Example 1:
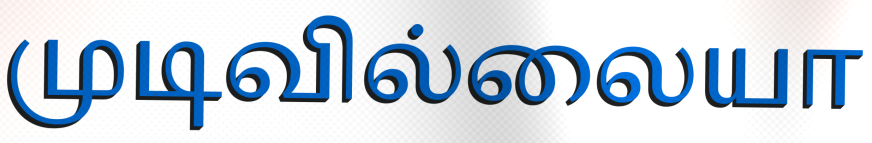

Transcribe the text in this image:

முடிவில்லையா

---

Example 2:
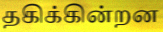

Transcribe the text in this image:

தகிக்கின்றன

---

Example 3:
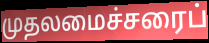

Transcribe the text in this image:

முதலமைச்சரைப்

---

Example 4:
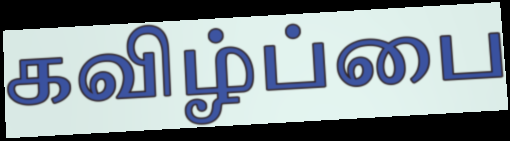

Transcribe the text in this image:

கவிழ்ப்பை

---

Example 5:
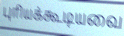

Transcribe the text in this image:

புரியக்கூடியவை